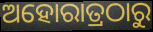
ଅହୋରାତ୍ରଠାରୁ